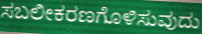
ಸಬಲೀಕರಣಗೊಳಿಸುವುದು